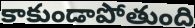
కాకుండాపోతుంది